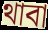
থাবা